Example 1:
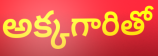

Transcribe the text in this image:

అక్కగారితో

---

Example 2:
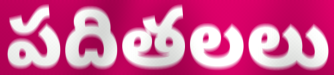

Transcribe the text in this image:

పదితలలు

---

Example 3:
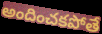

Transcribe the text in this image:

అందించకపోతే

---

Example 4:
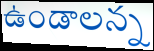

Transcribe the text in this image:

ఉండాలన్న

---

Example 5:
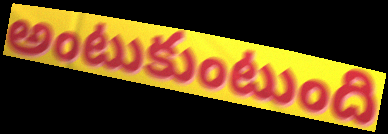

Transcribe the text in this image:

అంటుకుంటుంది